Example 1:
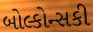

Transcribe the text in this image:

બોલ્કોન્સકી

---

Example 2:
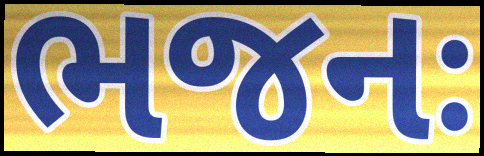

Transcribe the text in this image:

ભજનઃ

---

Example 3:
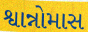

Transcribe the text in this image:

શ્વાન્નોમાસ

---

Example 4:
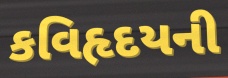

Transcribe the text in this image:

કવિહૃદયની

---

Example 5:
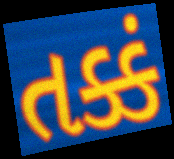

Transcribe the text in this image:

તક્કં